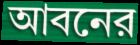
আবনের